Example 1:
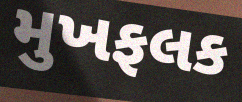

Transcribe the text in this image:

મુખફલક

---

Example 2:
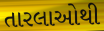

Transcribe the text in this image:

તારલાઓથી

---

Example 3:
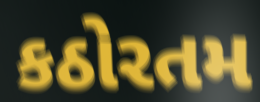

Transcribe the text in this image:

કઠોરતમ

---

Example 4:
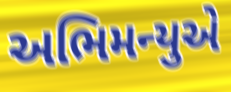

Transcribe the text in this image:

અભિમન્યુએ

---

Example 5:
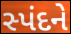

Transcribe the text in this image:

સ્પંદને